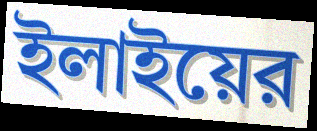
ইলাইয়ের